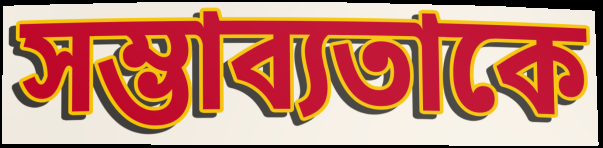
সম্ভাব্যতাকে